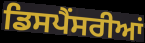
ਡਿਸਪੈਂਸਰੀਆਂ